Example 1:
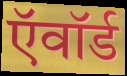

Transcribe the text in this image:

ऍवॉर्ड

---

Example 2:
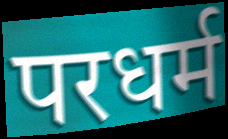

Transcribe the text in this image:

परधर्म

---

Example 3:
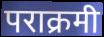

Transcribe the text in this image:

पराक्रमी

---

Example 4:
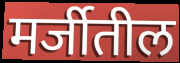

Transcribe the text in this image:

मर्जीतील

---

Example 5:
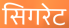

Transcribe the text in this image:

सिगरेट